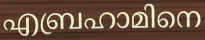
എബ്രഹാമിനെ